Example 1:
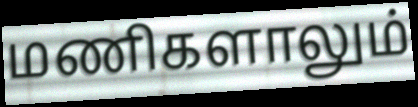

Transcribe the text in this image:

மணிகளாலும்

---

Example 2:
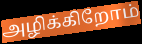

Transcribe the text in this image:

அழிக்கிறோம்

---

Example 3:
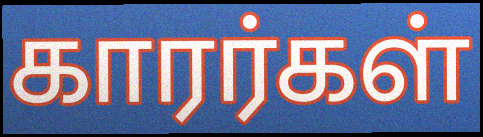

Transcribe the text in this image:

காரர்கள்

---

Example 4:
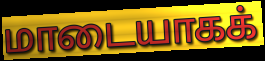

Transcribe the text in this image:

மாடையாகக்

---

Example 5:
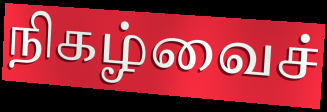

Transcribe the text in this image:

நிகழ்வைச்